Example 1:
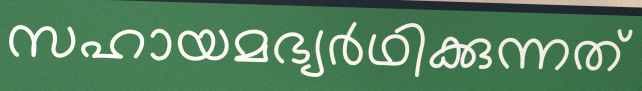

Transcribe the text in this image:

സഹായമഭ്യർഥിക്കുന്നത്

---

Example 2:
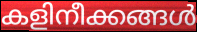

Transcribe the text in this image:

കളിനീക്കങ്ങൾ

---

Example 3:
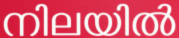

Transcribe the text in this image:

നിലയിൽ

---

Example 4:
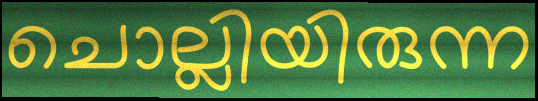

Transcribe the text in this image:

ചൊല്ലിയിരുന്ന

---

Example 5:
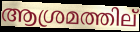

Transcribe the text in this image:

ആശ്രമത്തില്